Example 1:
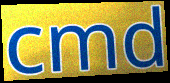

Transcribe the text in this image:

cmd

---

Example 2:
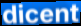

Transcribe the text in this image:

dicent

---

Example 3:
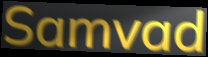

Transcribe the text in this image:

Samvad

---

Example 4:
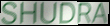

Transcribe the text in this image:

SHUDRA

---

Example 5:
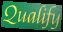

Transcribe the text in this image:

Qualify